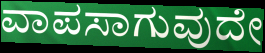
ವಾಪಸಾಗುವುದೇ